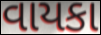
વાયકા